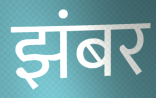
झंबर